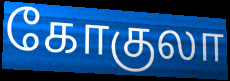
கோகுலா